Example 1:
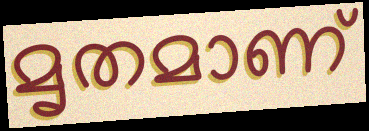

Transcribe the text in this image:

മൃതമാണ്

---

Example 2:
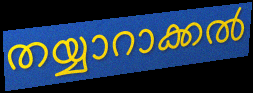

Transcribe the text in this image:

തയ്യാറാക്കൽ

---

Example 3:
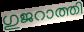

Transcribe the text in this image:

ഗുജറാത്തി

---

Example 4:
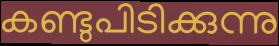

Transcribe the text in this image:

കണ്ടുപിടിക്കുന്നു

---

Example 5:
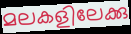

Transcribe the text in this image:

മലകളിലേക്കു